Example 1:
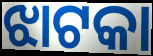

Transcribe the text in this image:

ଝାଟକା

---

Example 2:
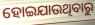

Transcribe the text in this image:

ହୋଇଯାଉଥିବାରୁ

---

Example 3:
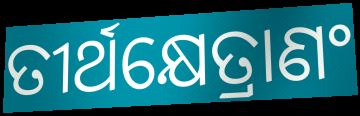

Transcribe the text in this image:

ତୀର୍ଥକ୍ଷେତ୍ରାଣଂ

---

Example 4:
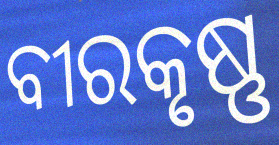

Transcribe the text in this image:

ବୀରକୃଷ୍ଣ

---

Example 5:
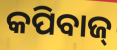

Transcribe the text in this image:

କପିବାଜ୍